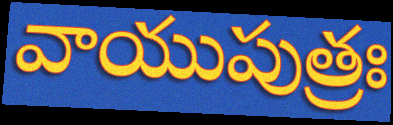
వాయుపుత్రః